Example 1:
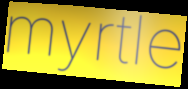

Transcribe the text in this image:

myrtle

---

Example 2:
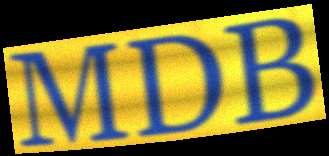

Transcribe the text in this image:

MDB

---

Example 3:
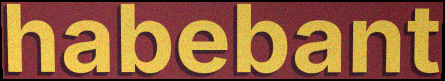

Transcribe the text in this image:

habebant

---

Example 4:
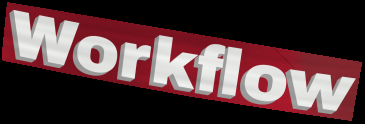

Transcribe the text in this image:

Workflow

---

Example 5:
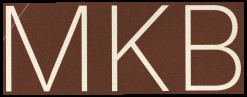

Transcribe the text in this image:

MKB